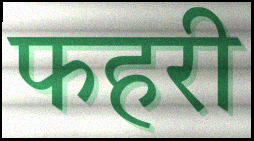
फहरी